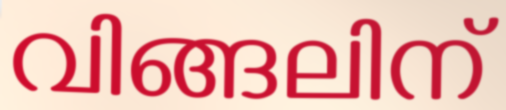
വിങ്ങലിന്